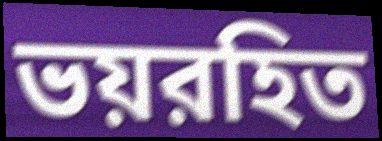
ভয়রহিত